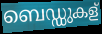
ബെഡ്ഡുകള്